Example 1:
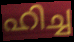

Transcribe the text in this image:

ഹിച്ച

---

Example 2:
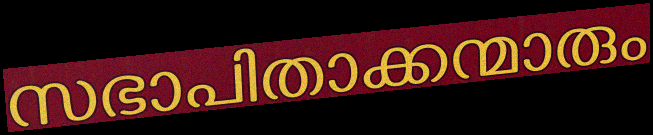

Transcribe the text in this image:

സഭാപിതാക്കന്മാരും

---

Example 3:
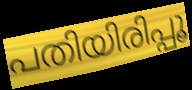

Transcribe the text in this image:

പതിയിരിപ്പൂ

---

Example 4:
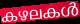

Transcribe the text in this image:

കഴലകൾ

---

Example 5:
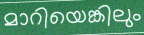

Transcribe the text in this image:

മാറിയെങ്കിലും